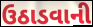
ઉઠાડવાની